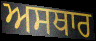
ਅਸਥਾਰ